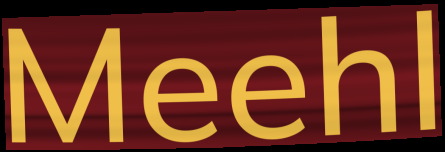
Meehl